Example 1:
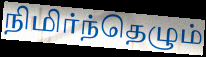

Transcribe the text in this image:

நிமிர்ந்தெழும்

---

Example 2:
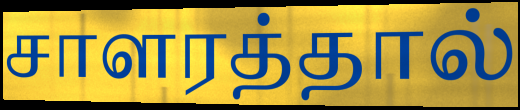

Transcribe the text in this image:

சாளரத்தால்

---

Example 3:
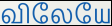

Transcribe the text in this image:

விலேயே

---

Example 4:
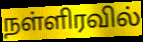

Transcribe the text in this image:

நள்ளிரவில்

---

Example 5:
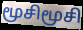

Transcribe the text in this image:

மூசிமூசி